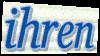
ihren